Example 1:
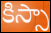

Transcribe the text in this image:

కిస్సా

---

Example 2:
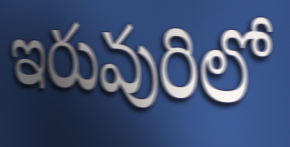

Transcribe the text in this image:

ఇరువురిలో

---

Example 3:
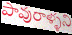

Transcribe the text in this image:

పావురాళ్ళని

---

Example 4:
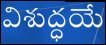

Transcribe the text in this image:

విశుద్ధయే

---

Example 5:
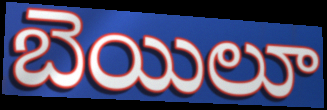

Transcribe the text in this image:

బెయిలూ